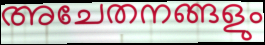
അചേതനങ്ങളും